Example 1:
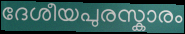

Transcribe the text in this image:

ദേശീയപുരസ്കാരം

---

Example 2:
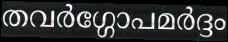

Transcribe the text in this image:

തവർഗ്ഗോപമർദ്ദം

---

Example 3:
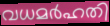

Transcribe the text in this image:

വധമർഹതി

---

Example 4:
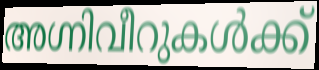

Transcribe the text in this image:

അഗ്നിവീറുകൾക്ക്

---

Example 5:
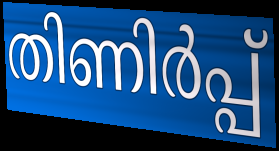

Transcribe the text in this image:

തിണിർപ്പ്